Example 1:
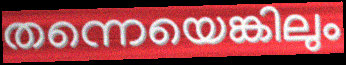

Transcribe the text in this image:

തന്നെയെങ്കിലും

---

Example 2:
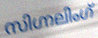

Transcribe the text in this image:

സിഗ്നലിംഗ്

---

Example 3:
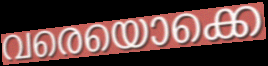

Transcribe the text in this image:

വരെയൊക്കെ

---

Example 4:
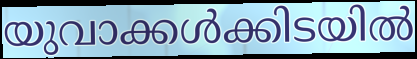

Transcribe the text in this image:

യുവാക്കൾക്കിടയിൽ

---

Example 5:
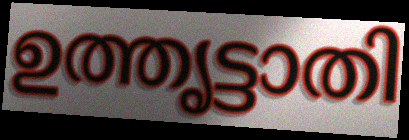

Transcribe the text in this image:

ഉത്തൃട്ടാതി